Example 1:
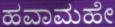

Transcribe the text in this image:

ಹವಾಮಹೇ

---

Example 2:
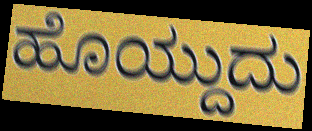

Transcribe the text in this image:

ಹೊಯ್ದುದು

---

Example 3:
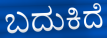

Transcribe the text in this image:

ಬದುಕಿದೆ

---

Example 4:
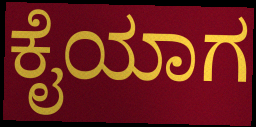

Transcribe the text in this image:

ಕೈಯಾಗ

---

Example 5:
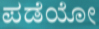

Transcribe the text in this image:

ಪಡೆಯೋ